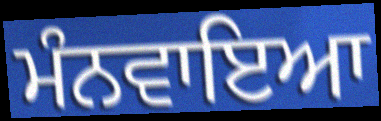
ਮੰਨਵਾਇਆ